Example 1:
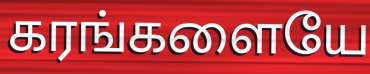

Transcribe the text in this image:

கரங்களையே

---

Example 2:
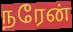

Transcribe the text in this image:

நரேன்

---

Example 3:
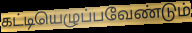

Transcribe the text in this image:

கட்டியெழுப்பவேண்டும்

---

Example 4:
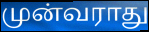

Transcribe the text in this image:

முன்வராது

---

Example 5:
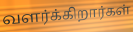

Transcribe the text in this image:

வளர்க்கிறார்கள்